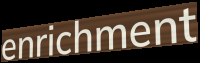
enrichment